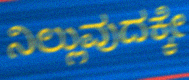
ನಿಲ್ಲುವುದಕ್ಕೇ